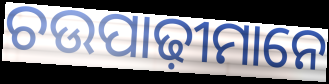
ଚଉପାଢ଼ୀମାନେ